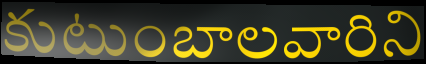
కుటుంబాలవారిని